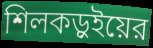
শিলকড়ুইয়ের